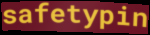
safetypin